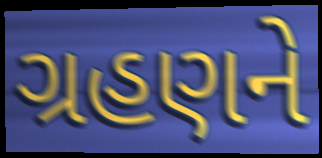
ગ્રહણને